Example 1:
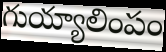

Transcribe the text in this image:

గుయ్యాలింపం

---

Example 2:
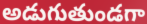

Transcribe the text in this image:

అడుగుతుండగా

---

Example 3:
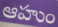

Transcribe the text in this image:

ఆహుం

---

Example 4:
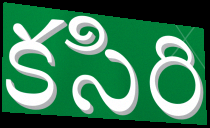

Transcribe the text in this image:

కసిరి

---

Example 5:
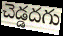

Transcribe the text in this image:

చెడ్డదగు